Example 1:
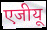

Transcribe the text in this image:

एजीयू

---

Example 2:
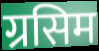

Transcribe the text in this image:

ग्रसिम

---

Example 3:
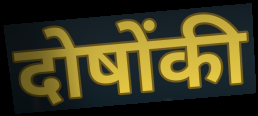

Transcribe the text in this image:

दोषोंकी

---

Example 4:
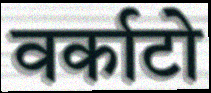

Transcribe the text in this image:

वर्काटो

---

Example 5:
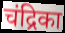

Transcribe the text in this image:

चंद्रिका